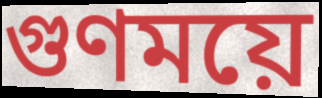
গুণময়ে